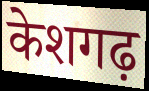
केशगढ़